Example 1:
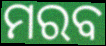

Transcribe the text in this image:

ମରବ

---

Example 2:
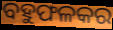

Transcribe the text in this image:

ବହୁଫଳକର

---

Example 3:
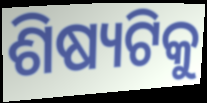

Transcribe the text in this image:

ଶିଷ୍ୟଟିକୁ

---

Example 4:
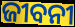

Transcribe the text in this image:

ଜୀବନୀ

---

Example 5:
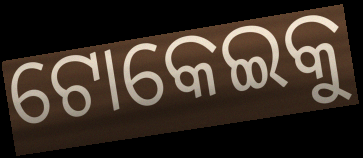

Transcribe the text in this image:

ଟୋକେଇକୁ